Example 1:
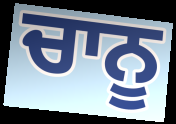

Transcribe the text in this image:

ਚਾਨੂ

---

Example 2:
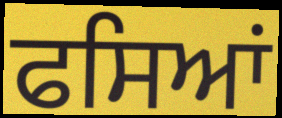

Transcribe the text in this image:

ਫਸਿਆਂ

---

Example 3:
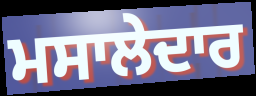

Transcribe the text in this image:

ਮਸਾਲੇਦਾਰ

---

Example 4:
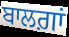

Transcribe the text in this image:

ਬਾਲਗ਼ਾਂ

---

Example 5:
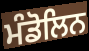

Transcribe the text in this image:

ਮੰਡੋਲਿਨ